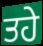
ਤਹੇ